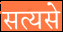
सत्यसे